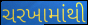
ચરખામાંથી